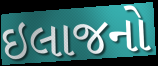
ઇલાજનો